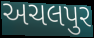
અચલપુર